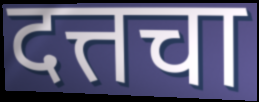
दत्तचा